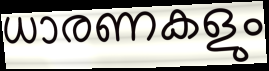
ധാരണകളും